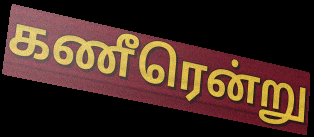
கணீரென்று